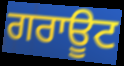
ਗਰਾਊਟ